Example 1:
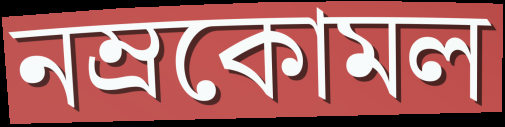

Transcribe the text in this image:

নম্রকোমল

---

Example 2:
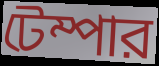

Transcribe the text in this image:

টেম্পার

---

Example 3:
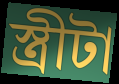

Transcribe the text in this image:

স্ত্রীটা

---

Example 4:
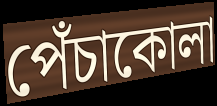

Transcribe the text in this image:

পেঁচাকোলা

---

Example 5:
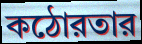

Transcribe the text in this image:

কঠোরতার